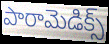
పారామెడిక్స్